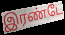
இரண்டே